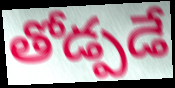
తోడ్పడే